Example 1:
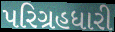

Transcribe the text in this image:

પરિગ્રહધારી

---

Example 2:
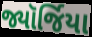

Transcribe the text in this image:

જ્યૉર્જિયા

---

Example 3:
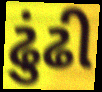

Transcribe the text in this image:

ઢુંઢી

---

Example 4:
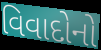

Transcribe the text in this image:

વિવાદોનો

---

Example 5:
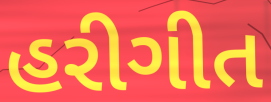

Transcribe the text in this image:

હરીગીત